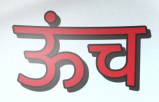
ऊंच